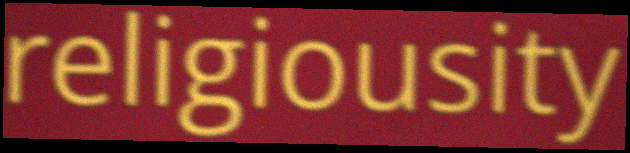
religiousity